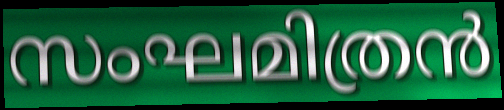
സംഘമിത്രൻ